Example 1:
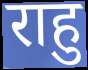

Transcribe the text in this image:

राहु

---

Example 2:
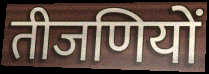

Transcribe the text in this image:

तीजणियों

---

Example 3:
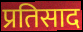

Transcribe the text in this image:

प्रतिसाद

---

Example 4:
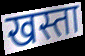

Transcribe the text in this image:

खस्ता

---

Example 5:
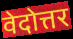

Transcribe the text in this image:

वेदोत्तर